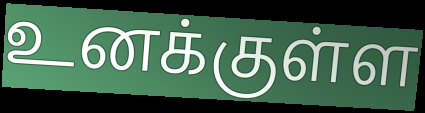
உனக்குள்ள